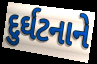
દુર્ઘટનાને